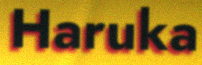
Haruka